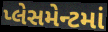
પ્લેસમેન્ટમાં